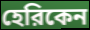
হেরিকেন